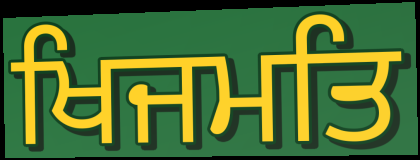
ਖਿਜਮਤਿ